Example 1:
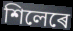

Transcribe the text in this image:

শিলেৰে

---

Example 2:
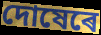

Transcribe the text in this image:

দোষেৰে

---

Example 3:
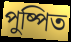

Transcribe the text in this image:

পুষ্পিত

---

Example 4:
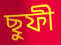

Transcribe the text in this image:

ছুফী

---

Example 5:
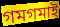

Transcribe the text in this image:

গমগমাই